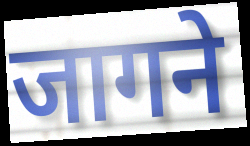
जागने